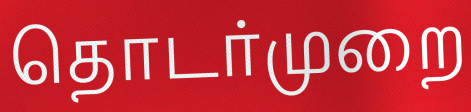
தொடர்முறை